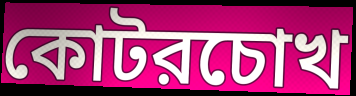
কোটরচোখ